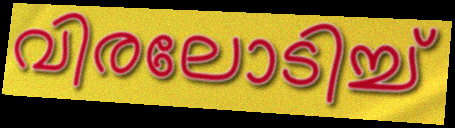
വിരലോടിച്ച്